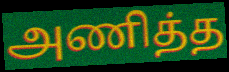
அணித்த